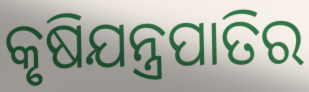
କୃଷିଯନ୍ତ୍ରପାତିର